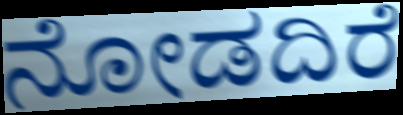
ನೋಡದಿರೆ